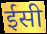
ईसी